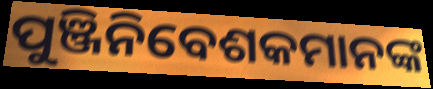
ପୁଞ୍ଜିନିବେଶକମାନଙ୍କ